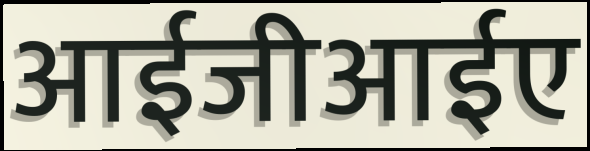
आईजीआईए